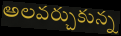
అలవర్చుకున్న